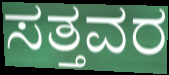
ಸತ್ತವರ